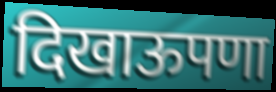
दिखाऊपणा